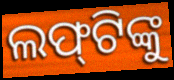
ଲଫ୍‌ଟିଙ୍କୁ